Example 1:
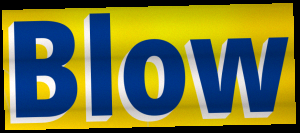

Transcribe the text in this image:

Blow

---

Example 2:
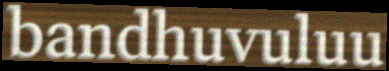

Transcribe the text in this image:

bandhuvuluu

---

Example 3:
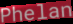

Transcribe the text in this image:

Phelan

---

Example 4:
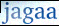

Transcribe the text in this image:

jagaa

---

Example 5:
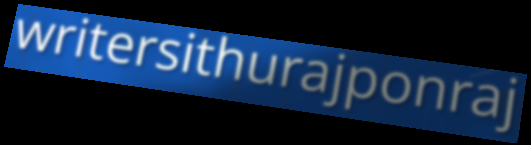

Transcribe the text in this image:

writersithurajponraj